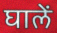
घालें